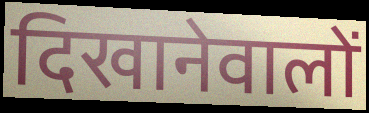
दिखानेवालों